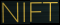
NIFT